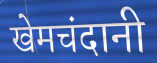
खेमचंदानी